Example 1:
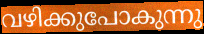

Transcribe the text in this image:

വഴിക്കുപോകുന്നു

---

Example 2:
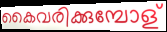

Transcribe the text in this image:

കൈവരിക്കുമ്പോള്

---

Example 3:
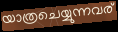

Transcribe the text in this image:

യാത്രചെയ്യുന്നവര്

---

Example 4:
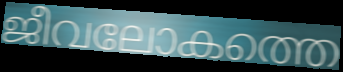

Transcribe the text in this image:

ജീവലോകത്തെ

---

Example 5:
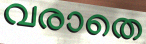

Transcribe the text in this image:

വരാതെ